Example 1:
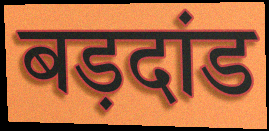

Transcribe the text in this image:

बड़दांड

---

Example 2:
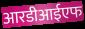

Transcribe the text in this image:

आरडीआईएफ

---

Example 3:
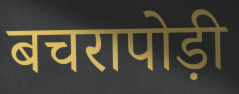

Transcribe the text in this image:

बचरापोड़ी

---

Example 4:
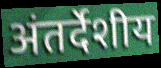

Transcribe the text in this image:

अंतर्देशीय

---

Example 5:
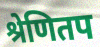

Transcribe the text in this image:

श्रेणितप